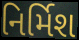
નિર્મિશ